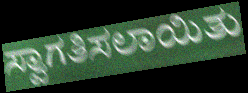
ಸ್ವಾಗತಿಸಲಾಯಿತು